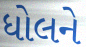
ધોલને